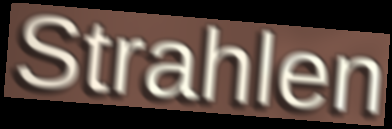
Strahlen